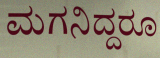
ಮಗನಿದ್ದರೂ